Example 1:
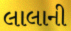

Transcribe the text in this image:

લાલાની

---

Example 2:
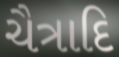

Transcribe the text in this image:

ચૈત્રાદિ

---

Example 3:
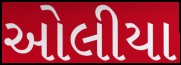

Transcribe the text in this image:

ઓલીયા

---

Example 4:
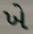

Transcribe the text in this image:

ખે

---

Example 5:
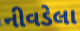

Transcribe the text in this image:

નીવડેલા